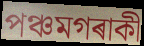
পঞ্চমগৰাকী